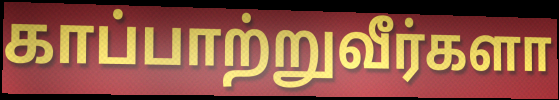
காப்பாற்றுவீர்களா